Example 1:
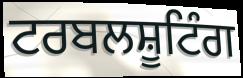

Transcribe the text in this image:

ਟਰਬਲਸ਼ੂਟਿੰਗ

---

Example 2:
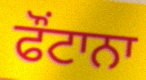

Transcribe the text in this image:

ਫੌਂਟਾਨਾ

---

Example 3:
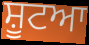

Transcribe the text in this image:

ਸ਼ੂਟਆ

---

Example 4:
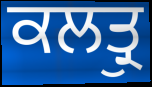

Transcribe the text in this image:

ਕਲਤ੍ਰੁ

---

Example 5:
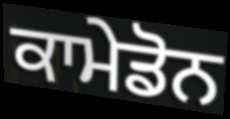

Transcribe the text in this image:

ਕਾਮੇਡੋਨ